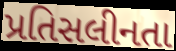
પ્રતિસલીનતા